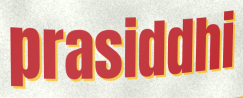
prasiddhi